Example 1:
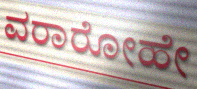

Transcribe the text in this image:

ವರಾರೋಹೇ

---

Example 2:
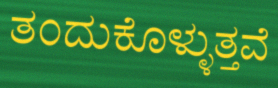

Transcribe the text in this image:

ತಂದುಕೊಳ್ಳುತ್ತವೆ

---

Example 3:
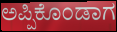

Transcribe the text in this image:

ಅಪ್ಪಿಕೊಂಡಾಗ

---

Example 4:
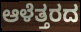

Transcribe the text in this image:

ಆಳೆತ್ತರದ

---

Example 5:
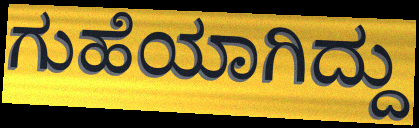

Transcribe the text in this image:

ಗುಹೆಯಾಗಿದ್ದು